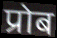
प्रोब